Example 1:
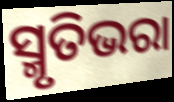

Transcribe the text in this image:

ସ୍ମୃତିଭରା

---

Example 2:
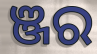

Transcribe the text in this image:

ଞ୍ଜର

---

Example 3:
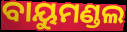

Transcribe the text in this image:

ବାୟୁମଣ୍ଡଲ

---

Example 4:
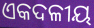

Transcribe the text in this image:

ଏକଦଳୀୟ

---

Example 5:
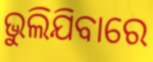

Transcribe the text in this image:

ଭୁଲିଯିବାରେ